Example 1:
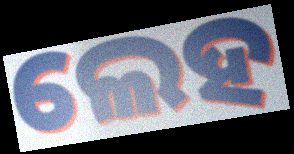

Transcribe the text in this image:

ଲେହ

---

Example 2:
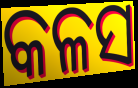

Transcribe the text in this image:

କଳସ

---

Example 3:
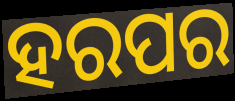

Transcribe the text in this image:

ହରପର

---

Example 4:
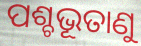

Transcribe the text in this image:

ପଶ୍ଚଭୂତାଣୁ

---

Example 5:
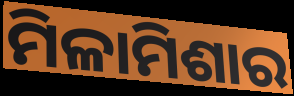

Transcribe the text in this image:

ମିଳାମିଶାର